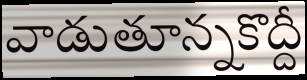
వాడుతూన్నకొద్దీ